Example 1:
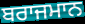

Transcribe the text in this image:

ਬਰਾਜਮਾਨ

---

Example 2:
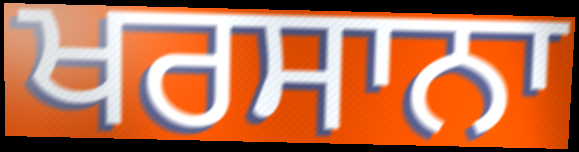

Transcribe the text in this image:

ਖਰਸਾਨਾ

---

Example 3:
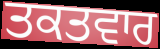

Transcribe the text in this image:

ਤਕਤਵਾਰ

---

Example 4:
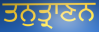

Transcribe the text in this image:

ਤਨੁਤ੍ਰਾਣਨ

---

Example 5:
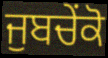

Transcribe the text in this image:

ਜੁਬਚੇਂਕੋ